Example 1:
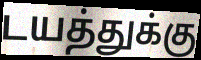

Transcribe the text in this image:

டயத்துக்கு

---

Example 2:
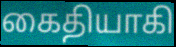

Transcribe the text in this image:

கைதியாகி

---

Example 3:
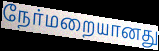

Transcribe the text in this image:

நேர்மறையானது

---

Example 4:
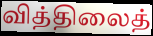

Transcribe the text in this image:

வித்திலைத்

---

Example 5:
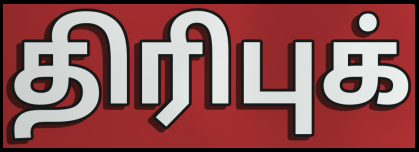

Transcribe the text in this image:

திரிபுக்